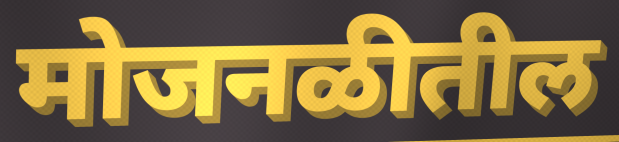
मोजनळीतील